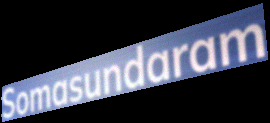
Somasundaram